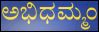
ಅಭಿಧಮ್ಮಂ